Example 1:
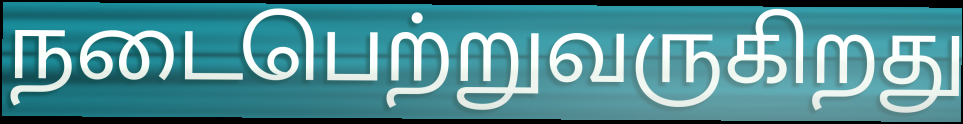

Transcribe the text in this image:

நடைபெற்றுவருகிறது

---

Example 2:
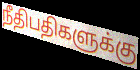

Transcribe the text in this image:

நீதிபதிகளுக்கு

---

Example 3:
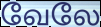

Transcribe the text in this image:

வேலே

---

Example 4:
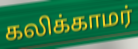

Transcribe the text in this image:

கலிக்காமர்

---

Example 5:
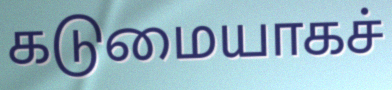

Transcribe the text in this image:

கடுமையாகச்